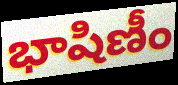
భాషిణీం